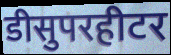
डीसुपरहीटर